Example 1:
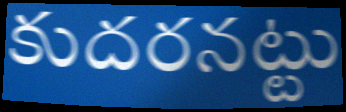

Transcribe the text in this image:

కుదరనట్టు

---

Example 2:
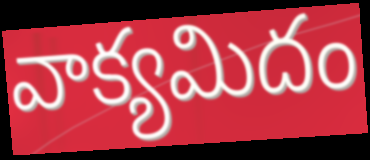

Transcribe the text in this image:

వాక్యమిదం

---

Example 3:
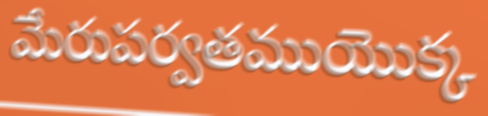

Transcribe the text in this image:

మేరుపర్వతముయొక్క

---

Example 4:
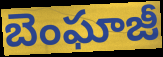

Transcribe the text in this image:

బెంఘాజీ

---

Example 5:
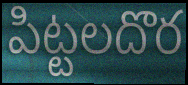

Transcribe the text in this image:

పిట్టలదొర